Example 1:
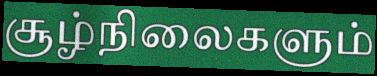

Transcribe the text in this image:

சூழ்நிலைகளும்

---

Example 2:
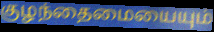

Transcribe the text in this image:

குழந்தைமையையும்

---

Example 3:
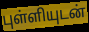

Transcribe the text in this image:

புள்ளியுடன்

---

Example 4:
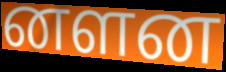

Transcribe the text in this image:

னளன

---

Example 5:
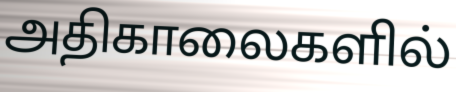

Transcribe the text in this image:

அதிகாலைகளில்